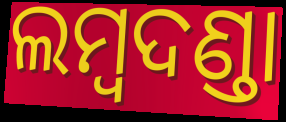
ଲମ୍ୱଦଣ୍ଡା